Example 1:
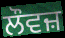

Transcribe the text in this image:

ਲੌਵਜ਼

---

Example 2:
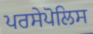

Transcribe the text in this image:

ਪਰਸੇਪੋਲਿਸ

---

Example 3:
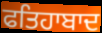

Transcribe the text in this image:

ਫਤਿਹਾਬਾਦ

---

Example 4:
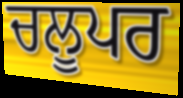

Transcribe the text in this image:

ਚਲੂਪਰ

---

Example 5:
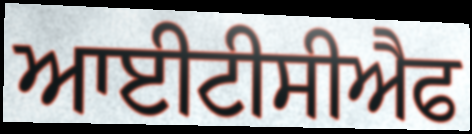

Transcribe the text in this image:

ਆਈਟੀਸੀਐਫ